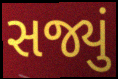
સજ્યું